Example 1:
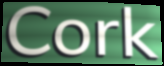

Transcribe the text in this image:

Cork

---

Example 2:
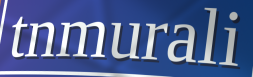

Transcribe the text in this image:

tnmurali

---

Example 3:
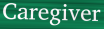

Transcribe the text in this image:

Caregiver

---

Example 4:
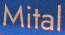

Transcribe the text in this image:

Mital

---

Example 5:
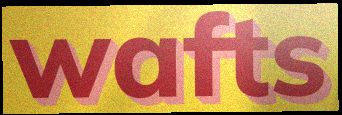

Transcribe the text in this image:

wafts